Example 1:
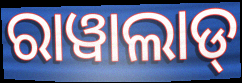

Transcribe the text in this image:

ରାୱାଲାଡ୍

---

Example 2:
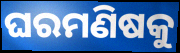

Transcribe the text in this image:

ଘରମଣିଷକୁ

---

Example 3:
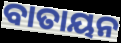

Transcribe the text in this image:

ବାତାୟନ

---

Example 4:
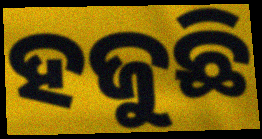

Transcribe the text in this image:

ହଜୁଛି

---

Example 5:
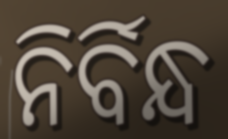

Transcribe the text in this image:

ନିର୍ବିନ୍ଧ